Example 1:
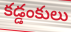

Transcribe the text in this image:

కడ్డంకులు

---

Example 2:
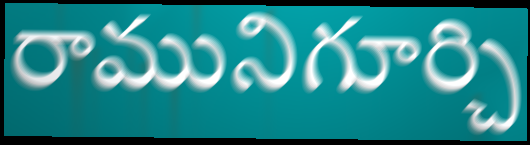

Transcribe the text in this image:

రామునిగూర్చి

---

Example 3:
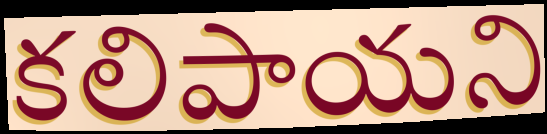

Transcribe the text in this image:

కలిపాయని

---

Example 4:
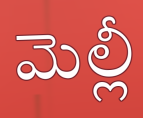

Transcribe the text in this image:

మెల్లీ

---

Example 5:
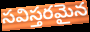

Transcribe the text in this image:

సవిస్తరమైన